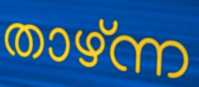
താഴ്ന്ന